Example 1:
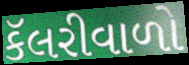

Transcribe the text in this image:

કૅલરીવાળો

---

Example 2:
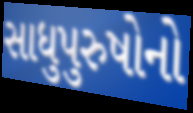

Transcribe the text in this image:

સાધુપુરુષોનો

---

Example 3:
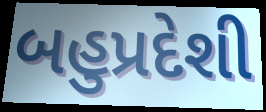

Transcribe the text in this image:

બહુપ્રદેશી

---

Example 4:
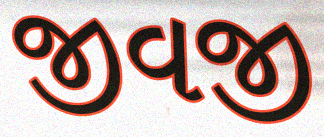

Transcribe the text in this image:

જીવજી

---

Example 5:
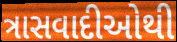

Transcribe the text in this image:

ત્રાસવાદીઓથી